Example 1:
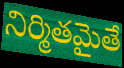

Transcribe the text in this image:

నిర్మితమైతే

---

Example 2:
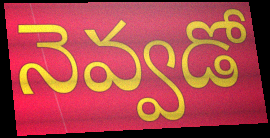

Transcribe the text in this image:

నెవ్వడో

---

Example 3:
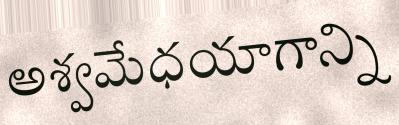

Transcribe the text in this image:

అశ్వమేధయాగాన్ని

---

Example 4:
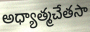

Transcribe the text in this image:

అధ్యాత్మచేతసా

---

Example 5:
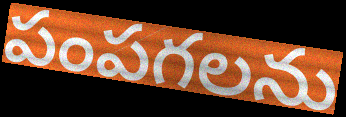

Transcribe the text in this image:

పంపగలను